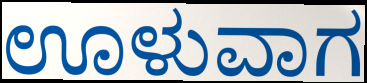
ಊಳುವಾಗ